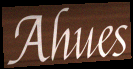
Ahues